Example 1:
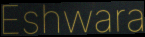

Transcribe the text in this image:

Eshwara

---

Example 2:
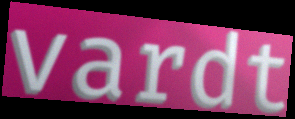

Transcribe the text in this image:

vardt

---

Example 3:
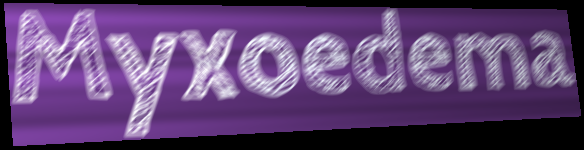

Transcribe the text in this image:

Myxoedema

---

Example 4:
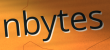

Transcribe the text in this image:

nbytes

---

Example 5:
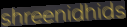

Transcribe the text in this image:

shreenidhids